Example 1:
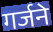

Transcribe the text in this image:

गर्जने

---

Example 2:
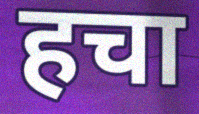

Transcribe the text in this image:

हचा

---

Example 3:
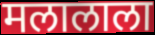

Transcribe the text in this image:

मलालाला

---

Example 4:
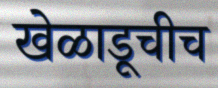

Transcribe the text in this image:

खेळाडूचीच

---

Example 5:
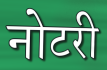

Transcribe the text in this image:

नोटरी